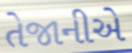
તેજાનીએ